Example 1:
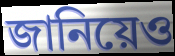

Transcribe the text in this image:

জানিয়েও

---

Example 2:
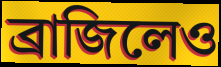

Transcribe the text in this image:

ব্রাজিলেও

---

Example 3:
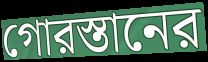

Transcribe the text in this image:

গোরস্তানের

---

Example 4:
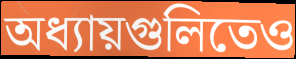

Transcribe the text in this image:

অধ্যায়গুলিতেও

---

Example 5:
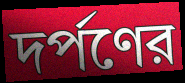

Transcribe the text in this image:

দর্পণের